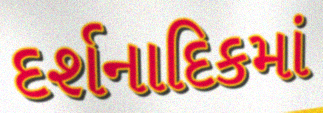
દર્શનાદિકમાં